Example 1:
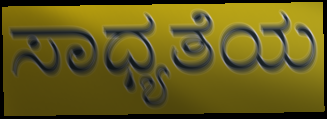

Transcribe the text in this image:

ಸಾಧ್ಯತೆಯ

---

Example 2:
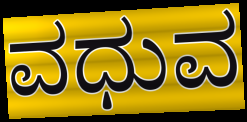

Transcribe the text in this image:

ವಧುವ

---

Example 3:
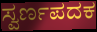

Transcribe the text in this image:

ಸ್ವರ್ಣಪದಕ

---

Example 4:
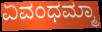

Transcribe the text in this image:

ಏವಂಧಮ್ಮಾ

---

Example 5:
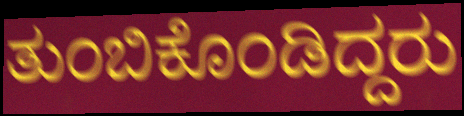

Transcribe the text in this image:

ತುಂಬಿಕೊಂಡಿದ್ದರು